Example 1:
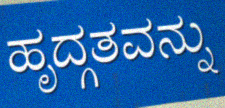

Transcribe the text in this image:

ಹೃದ್ಗತವನ್ನು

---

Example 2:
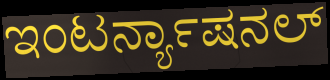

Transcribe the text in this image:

ಇಂಟರ್ನ್ಯಾಷನಲ್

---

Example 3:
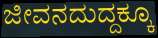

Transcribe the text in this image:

ಜೀವನದುದ್ದಕ್ಕೂ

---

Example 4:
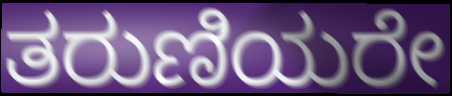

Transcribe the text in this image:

ತರುಣಿಯರೇ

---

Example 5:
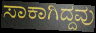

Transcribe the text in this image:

ಸಾಕಾಗಿದ್ದವು